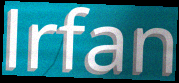
Irfan